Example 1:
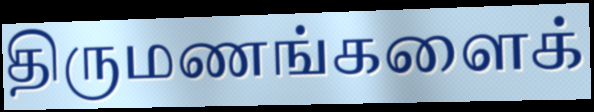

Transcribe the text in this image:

திருமணங்களைக்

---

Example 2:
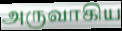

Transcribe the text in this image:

அருவாகிய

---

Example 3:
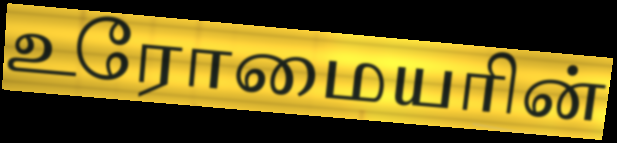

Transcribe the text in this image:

உரோமையரின்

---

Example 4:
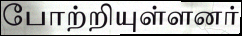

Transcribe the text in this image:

போற்றியுள்ளனர்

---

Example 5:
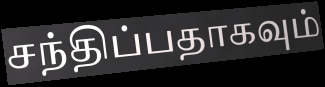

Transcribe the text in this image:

சந்திப்பதாகவும்